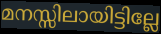
മനസ്സിലായിട്ടില്ലേ